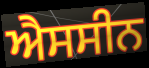
ਐਸਸੀਨ